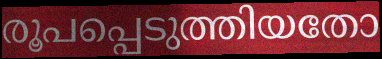
രൂപപ്പെടുത്തിയതോ